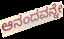
ಆನಂದವನ್ನೇ